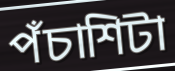
পঁচাশিটা